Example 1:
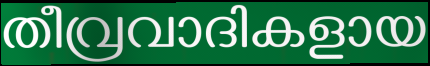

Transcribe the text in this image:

തീവ്രവാദികളായ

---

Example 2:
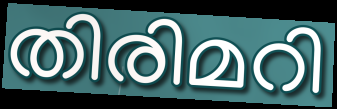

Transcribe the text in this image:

തിരിമറി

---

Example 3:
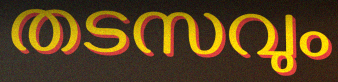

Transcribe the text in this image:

തടസവും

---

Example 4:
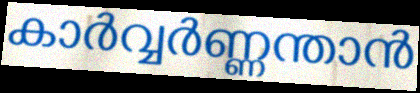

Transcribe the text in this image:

കാർവ്വർണ്ണന്താൻ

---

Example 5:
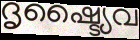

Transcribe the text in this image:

ദൃഷ്ട്യൈവ